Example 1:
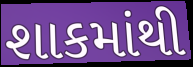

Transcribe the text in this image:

શાકમાંથી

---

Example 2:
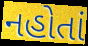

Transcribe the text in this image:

નહોતાં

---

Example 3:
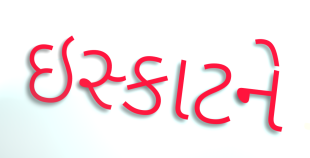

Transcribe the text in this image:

ઇસ્કાટને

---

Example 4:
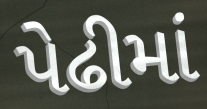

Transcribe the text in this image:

પેઢીમાં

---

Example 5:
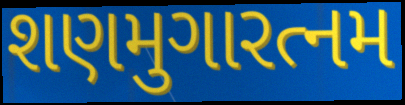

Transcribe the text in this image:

શણમુગારત્નમ